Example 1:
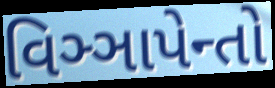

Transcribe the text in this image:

વિઞ્ઞાપેન્તો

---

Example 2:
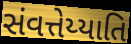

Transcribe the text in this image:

સંવત્તેય્યાતિ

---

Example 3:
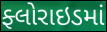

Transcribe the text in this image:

ફ્લોરાઇડમાં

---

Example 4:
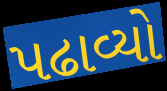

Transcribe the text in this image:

પઢાવ્યો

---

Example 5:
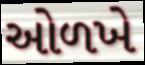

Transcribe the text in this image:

ઓળખે